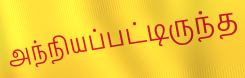
அந்நியப்பட்டிருந்த